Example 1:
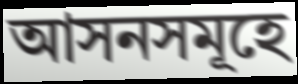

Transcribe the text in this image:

আসনসমূহে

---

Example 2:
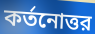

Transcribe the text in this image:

কর্তনোত্তর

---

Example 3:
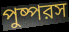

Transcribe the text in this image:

পুষ্পরস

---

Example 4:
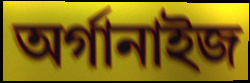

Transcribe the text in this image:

অর্গানাইজ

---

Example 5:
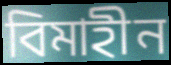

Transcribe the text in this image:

বিমাহীন